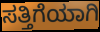
ಸತ್ತಿಗೆಯಾಗಿ